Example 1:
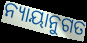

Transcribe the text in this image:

ନ୍ୟାୟାନୁଗତ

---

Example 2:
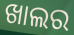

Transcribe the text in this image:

ଖାଲର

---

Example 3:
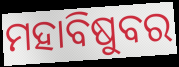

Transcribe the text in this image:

ମହାବିଷୁବର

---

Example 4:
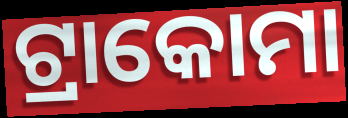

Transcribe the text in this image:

ଟ୍ରାକୋମା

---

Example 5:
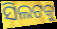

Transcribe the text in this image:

ସିଲଟକୁ